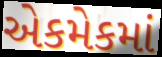
એકમેકમાં